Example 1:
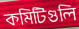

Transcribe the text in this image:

কমিটিগুলি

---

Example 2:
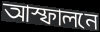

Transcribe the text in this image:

আস্ফালনে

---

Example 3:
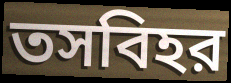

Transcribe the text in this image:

তসবিহর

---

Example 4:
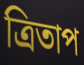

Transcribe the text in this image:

ত্রিতাপ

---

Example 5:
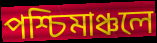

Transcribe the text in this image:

পশ্চিমাঞ্চলে